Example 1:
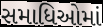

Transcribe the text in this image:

સમાધિઓમાં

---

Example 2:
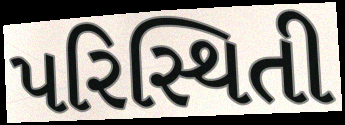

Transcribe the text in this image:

પરિસ્થિતી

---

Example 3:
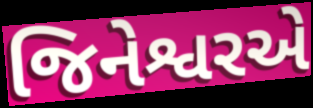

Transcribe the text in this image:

જિનેશ્વરએ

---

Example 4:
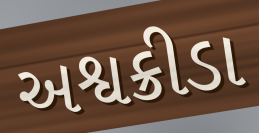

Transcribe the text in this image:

અશ્વક્રીડા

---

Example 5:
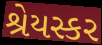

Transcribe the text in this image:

શ્રેયસ્કર